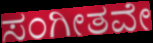
ಸಂಗೀತವೇ